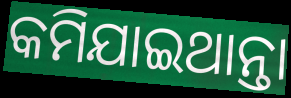
କମିଯାଇଥାନ୍ତା